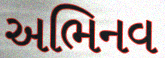
અભિનવ